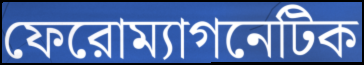
ফেরোম্যাগনেটিক